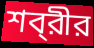
শব্‌রীর